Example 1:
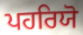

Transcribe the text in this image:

ਪਹਰਿਯੋ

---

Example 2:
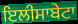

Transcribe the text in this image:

ਇਲੀਸਾਬੇਟਾ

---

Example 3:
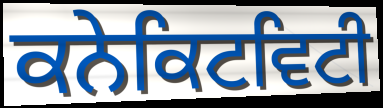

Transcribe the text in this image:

ਕਨੇਕਿਟਵਿਟੀ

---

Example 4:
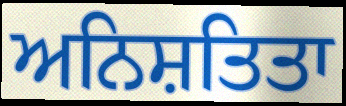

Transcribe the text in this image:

ਅਨਿਸ਼ਤਿਤਾ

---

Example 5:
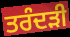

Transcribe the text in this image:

ਤਰੰਦੜੀ